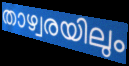
താഴ്വരയിലും